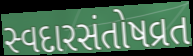
સ્વદારસંતોષવ્રત